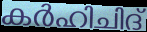
കർഹിചിദ്